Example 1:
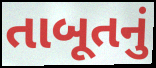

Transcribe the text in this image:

તાબૂતનું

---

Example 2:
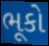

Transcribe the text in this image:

ભૂકો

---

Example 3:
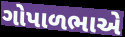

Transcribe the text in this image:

ગોપાળભાએ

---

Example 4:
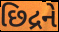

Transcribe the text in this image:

છિદ્રને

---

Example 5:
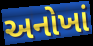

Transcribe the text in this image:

અનોખાં